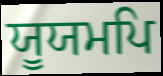
ਯੂਯਮਪਿ